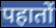
पहातों